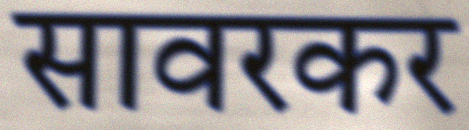
सावरकर